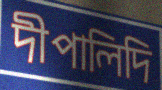
দীপালিদি